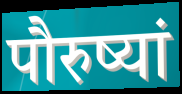
पौरुष्यां